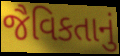
જૈવિકતાનું